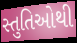
સ્તુતિઓથી